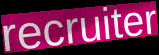
recruiter